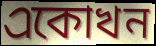
একোখন